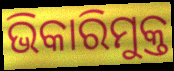
ଭିକାରିମୁକ୍ତ